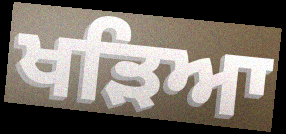
ਖੜਿਆ